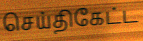
செய்திகேட்ட